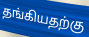
தங்கியதற்கு